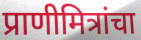
प्राणीमित्रांचा